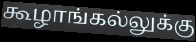
கூழாங்கல்லுக்கு